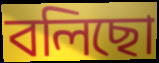
বলিছো